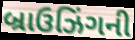
બ્રાઉઝિંગની